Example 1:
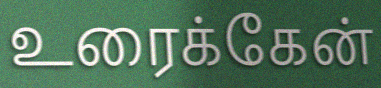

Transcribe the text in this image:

உரைக்கேன்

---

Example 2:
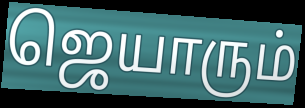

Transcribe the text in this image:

ஜெயாரும்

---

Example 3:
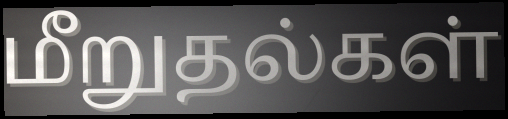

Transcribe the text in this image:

மீறுதல்கள்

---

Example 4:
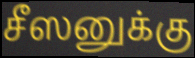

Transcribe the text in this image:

சீஸனுக்கு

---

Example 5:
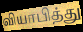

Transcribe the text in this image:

வியாபித்து